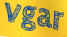
vgar